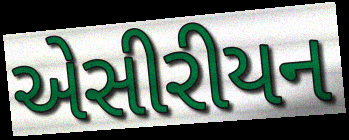
એસીરીયન